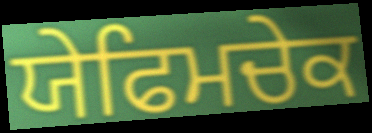
ਯੇਫਿਮਚੇਕ